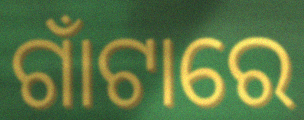
ଗାଁଟାରେ